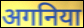
अगनिया